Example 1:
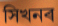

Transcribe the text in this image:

সিখনৰ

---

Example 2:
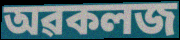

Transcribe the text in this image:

অৱকলজ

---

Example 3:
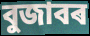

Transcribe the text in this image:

বুজাবৰ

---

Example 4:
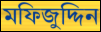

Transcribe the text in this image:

মফিজুদ্দিন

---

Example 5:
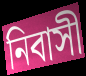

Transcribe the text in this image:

নিবাসী